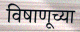
विषाणूच्या